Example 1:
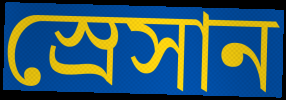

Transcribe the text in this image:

স্রেসান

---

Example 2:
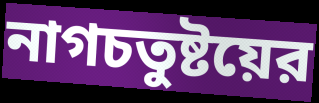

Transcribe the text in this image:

নাগচতুষ্টয়ের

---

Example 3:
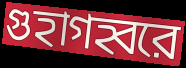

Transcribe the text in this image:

গুহাগহ্বরে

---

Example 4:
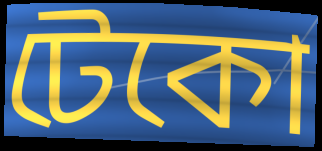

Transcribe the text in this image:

টেকো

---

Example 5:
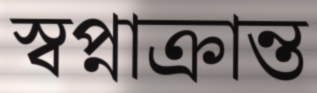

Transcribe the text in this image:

স্বপ্নাক্রান্ত